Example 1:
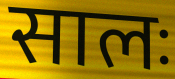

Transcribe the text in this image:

सालः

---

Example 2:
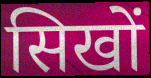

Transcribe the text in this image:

सिखों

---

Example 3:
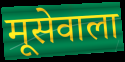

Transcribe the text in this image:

मूसेवाला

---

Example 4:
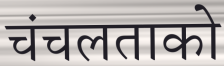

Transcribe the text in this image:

चंचलताको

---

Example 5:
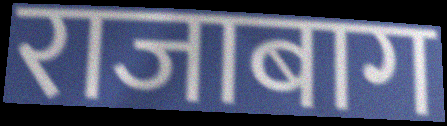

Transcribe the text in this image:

राजाबाग